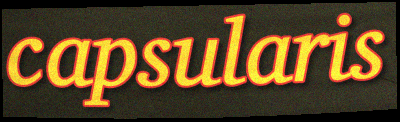
capsularis